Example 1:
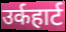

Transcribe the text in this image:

उर्कहार्ट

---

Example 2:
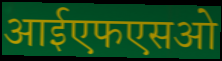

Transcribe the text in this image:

आईएफएसओ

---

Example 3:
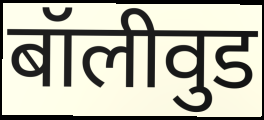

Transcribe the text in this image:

बॉलीवुड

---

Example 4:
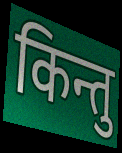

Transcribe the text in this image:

किन्तु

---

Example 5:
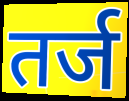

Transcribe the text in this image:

तर्ज